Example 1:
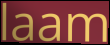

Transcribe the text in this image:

laam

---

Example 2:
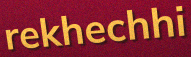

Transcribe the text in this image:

rekhechhi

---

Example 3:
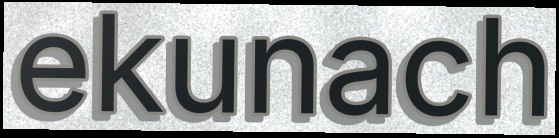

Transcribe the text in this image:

ekunach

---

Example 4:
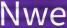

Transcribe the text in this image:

Nwe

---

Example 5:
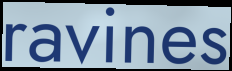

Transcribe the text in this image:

ravines